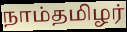
நாம்தமிழர்